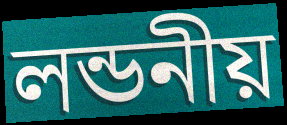
লন্ডনীয়